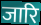
जारि